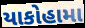
યાકોહામા